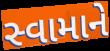
સ્વામાને